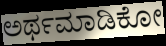
ಅರ್ಥಮಾಡಿಕೋ